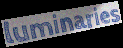
luminaries